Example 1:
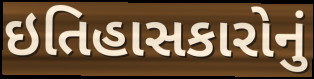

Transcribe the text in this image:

ઇતિહાસકારોનું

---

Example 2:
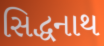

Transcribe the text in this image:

સિદ્ધનાથ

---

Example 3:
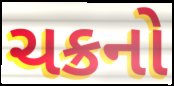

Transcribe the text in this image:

ચક્રનો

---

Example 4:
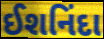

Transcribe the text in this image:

ઈશનિંદા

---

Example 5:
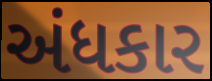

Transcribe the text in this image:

અંધકાર